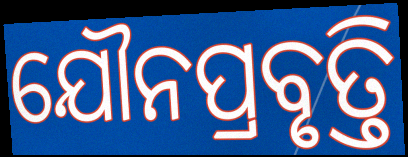
ଯୌନପ୍ରବୃତ୍ତି